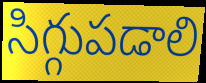
సిగ్గుపడాలి